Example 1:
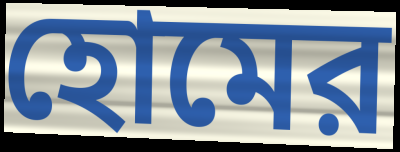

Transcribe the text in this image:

হোমের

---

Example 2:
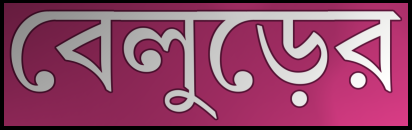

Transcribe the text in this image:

বেলুড়ের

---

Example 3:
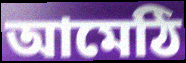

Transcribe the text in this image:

আমেঠি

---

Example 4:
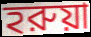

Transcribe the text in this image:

হরুয়া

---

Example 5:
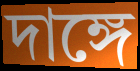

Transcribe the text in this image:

দাঙ্গে